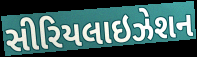
સીરિયલાઇઝેશન